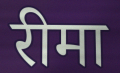
रीमा